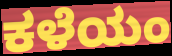
ಕಳೆಯಂ